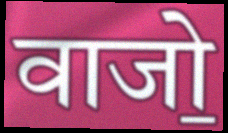
वाजो॒